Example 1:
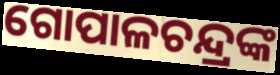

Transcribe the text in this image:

ଗୋପାଳଚନ୍ଦ୍ରଙ୍କ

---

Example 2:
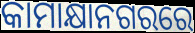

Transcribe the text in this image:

କାମାକ୍ଷାନଗରରେ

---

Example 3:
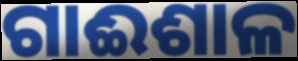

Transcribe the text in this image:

ଗାଈଶାଳ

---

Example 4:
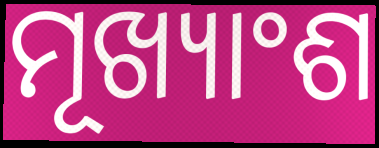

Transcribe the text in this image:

ମୂଖ୍ୟାଂଶ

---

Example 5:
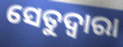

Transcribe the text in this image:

ସେତୁଦ୍ୱାରା